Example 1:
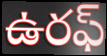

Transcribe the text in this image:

ఉరఫ్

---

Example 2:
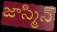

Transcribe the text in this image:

జాస్మిన్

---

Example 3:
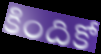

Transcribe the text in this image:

కిందికో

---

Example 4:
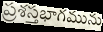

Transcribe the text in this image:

ప్రశస్తభాగమును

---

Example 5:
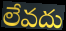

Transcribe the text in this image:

లేవదు